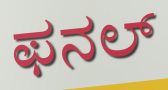
ಫನಲ್